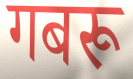
गबरू